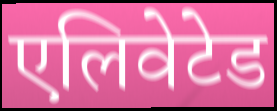
एलिवेटेड